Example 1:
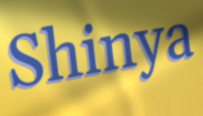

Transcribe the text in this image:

Shinya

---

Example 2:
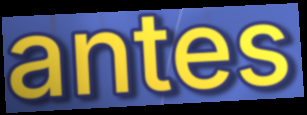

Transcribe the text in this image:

antes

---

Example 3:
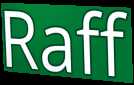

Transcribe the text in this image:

Raff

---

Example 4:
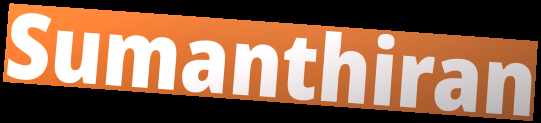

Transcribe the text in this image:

Sumanthiran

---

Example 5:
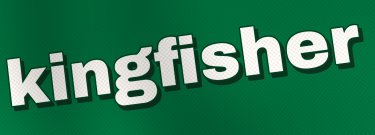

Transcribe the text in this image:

kingfisher